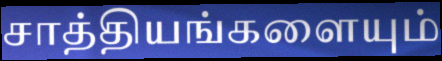
சாத்தியங்களையும்